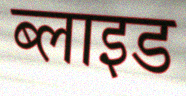
ब्लाइड